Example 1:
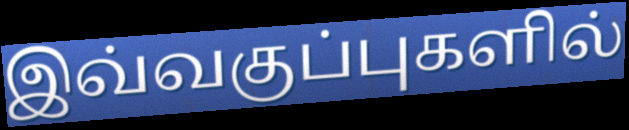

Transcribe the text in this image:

இவ்வகுப்புகளில்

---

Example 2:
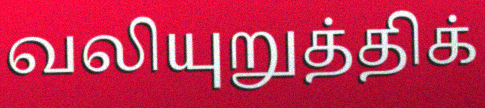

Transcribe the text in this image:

வலியுறுத்திக்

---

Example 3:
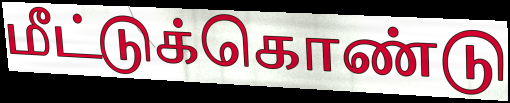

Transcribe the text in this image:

மீட்டுக்கொண்டு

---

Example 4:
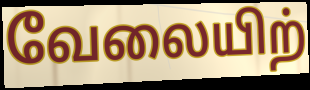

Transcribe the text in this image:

வேலையிற்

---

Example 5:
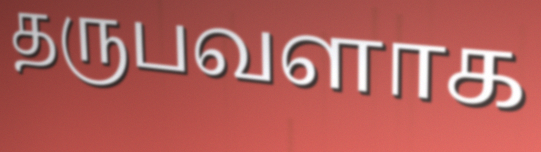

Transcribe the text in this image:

தருபவளாக